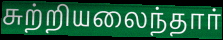
சுற்றியலைந்தார்